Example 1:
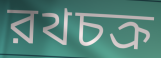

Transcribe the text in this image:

রথচক্র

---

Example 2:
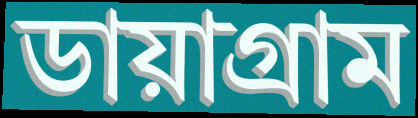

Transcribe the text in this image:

ডায়াগ্রাম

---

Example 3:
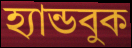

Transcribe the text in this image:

হ্যান্ডবুক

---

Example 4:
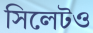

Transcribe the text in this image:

সিলেটও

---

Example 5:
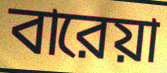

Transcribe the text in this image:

বারেয়া